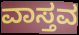
ವಾಸ್ತವ